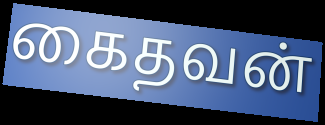
கைதவன்